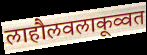
लाहौलवलाकूव्वत